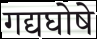
गद्यघोषे